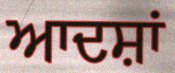
ਆਦਸ਼ਾਂ